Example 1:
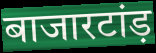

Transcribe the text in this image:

बाजारटांड़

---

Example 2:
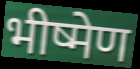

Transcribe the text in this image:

भीष्मेण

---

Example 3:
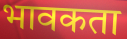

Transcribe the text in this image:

भावकता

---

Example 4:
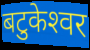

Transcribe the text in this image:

बटुकेश्‍वर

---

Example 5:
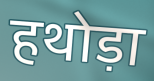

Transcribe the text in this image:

हथोड़ा